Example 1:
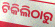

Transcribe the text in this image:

ଟିକିଲିଠାରୁ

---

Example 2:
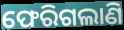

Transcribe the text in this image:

ଫେରିଗଲାଣି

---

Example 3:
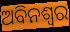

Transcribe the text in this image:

ଅବିନଶ୍ଵର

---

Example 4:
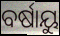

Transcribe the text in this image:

ବର୍ଷାୟୁ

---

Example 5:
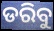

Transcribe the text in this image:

ଡରିବୁ